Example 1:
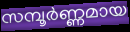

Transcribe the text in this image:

സമ്പൂർണ്ണമായ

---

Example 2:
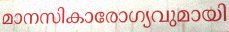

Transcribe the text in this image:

മാനസികാരോഗ്യവുമായി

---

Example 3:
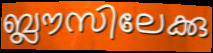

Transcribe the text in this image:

ബ്ലൗസിലേക്കു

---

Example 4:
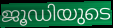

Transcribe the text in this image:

ജൂഡിയുടെ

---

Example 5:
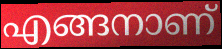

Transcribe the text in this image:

എങ്ങനാണ്